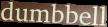
dumbbell